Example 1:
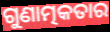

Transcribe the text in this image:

ଗୁଣାତ୍ମକତାର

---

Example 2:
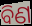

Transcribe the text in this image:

ବିଣ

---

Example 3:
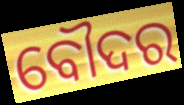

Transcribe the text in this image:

ବୌଦର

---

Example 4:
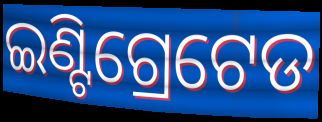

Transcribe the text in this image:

ଇଣ୍ଟିଗ୍ରେଟେଡ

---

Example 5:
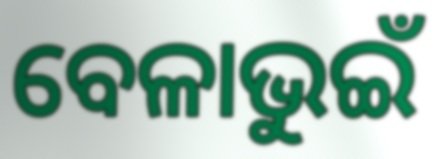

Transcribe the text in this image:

ବେଳାଭୁଇଁ